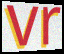
vr